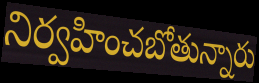
నిర్వహించబోతున్నారు